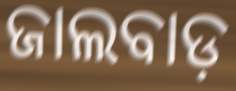
ଜାଲବାଡ଼